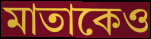
মাতাকেও